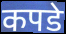
कपडे